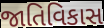
જાતિવિકાસ